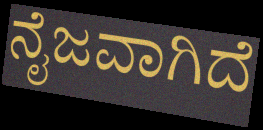
ನೈಜವಾಗಿದೆ